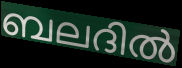
ബലദിൽ